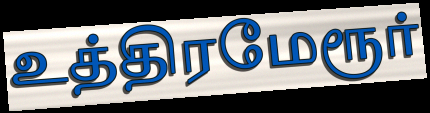
உத்திரமேரூர்